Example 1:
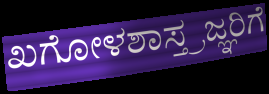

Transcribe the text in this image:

ಖಗೋಳಶಾಸ್ತ್ರಜ್ಞರಿಗೆ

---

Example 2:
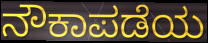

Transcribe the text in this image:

ನೌಕಾಪಡೆಯ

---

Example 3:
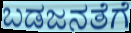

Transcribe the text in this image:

ಬಡಜನತೆಗೆ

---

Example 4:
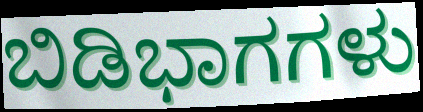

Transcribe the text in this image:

ಬಿಡಿಭಾಗಗಳು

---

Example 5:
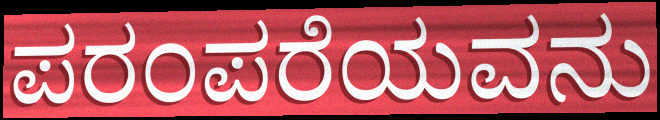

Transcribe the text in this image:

ಪರಂಪರೆಯವನು